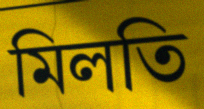
মিলতি